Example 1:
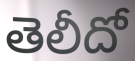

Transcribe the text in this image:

తెలీదో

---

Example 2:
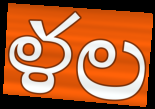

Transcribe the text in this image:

ళల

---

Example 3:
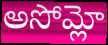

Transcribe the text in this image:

అసోమ్లో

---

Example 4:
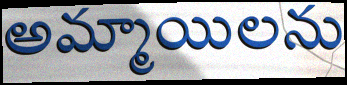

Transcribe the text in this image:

అమ్మాయిలను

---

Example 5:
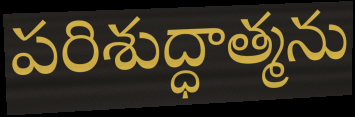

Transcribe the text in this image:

పరిశుద్ధాత్మను